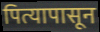
पित्यापासून